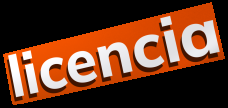
licencia